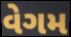
વેગમ